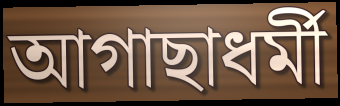
আগাছাধর্মী